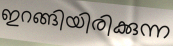
ഇറങ്ങിയിരിക്കുന്ന